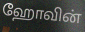
ஹோவின்